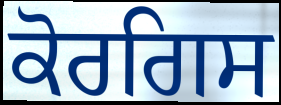
ਕੋਰਗਿਸ